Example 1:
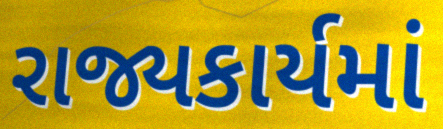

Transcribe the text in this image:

રાજ્યકાર્યમાં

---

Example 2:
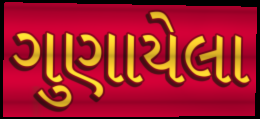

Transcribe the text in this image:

ગુણાયેલા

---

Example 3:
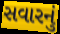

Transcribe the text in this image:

સવારનું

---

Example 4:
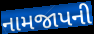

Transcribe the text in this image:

નામજાપની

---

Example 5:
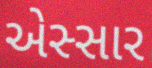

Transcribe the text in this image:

એસ્સાર